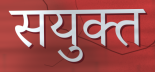
सयुक्त